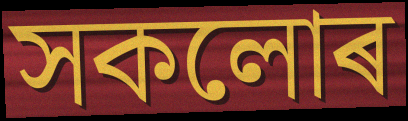
সকলোৰ